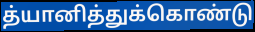
த்யானித்துக்கொண்டு